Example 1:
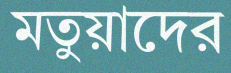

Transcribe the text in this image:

মতুয়াদের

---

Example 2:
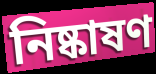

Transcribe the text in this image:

নিষ্কাষণ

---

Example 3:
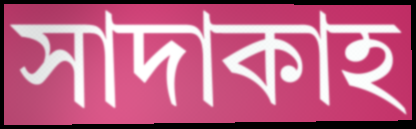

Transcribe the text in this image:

সাদাকাহ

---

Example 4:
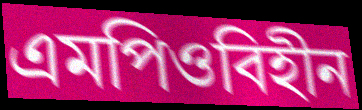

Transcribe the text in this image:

এমপিওবিহীন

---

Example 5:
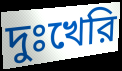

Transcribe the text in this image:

দুঃখেরি